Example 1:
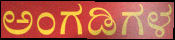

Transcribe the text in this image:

ಅಂಗಡಿಗಳ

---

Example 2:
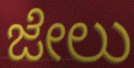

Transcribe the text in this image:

ಜೇಲು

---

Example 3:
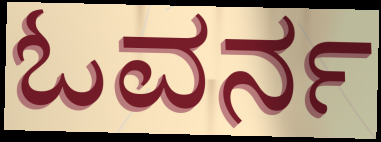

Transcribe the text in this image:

ಓವರ್ನ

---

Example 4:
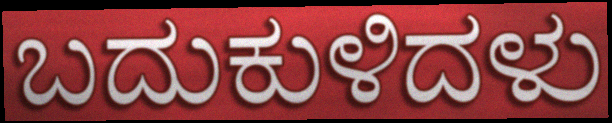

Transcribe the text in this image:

ಬದುಕುಳಿದಳು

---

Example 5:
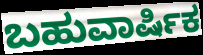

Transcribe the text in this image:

ಬಹುವಾರ್ಷಿಕ